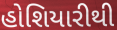
હોશિયારીથી